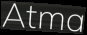
Atma